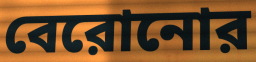
বেরোনোর